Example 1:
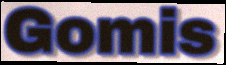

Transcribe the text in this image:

Gomis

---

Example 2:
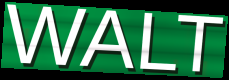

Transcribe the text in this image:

WALT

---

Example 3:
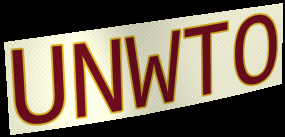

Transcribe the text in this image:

UNWTO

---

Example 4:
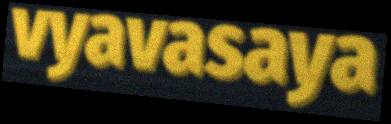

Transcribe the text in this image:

vyavasaya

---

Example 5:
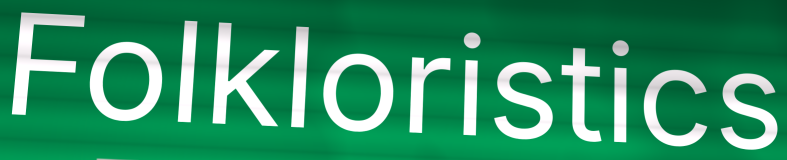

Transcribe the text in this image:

Folkloristics